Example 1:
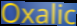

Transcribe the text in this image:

Oxalic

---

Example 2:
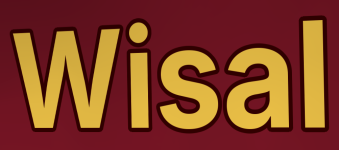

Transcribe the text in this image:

Wisal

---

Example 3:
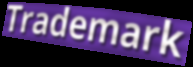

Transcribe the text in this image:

Trademark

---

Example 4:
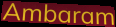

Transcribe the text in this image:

Ambaram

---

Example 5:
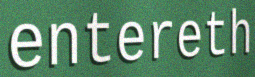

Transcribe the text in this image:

entereth